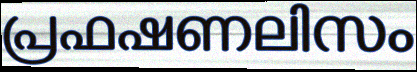
പ്രഫഷണലിസം